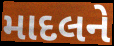
માદલને